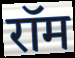
रॉम